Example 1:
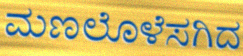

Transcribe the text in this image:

ಮಣಲೊಳೆಸಗಿದ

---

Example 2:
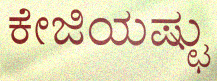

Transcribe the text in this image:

ಕೇಜಿಯಷ್ಟು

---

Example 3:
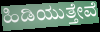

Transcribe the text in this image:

ಹಿಡಿಯುತ್ತೇವೆ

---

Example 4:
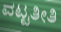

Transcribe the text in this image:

ವಟ್ಟತೀತಿ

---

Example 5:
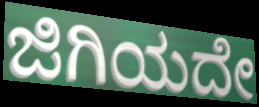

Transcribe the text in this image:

ಜಿಗಿಯದೇ